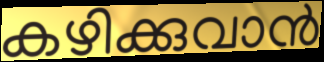
കഴിക്കുവാൻ